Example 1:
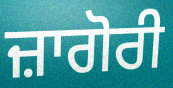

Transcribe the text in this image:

ਜ਼ਾਗੋਰੀ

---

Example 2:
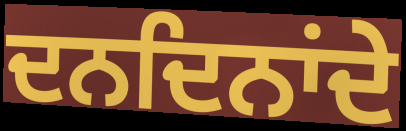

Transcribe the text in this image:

ਦਨਦਿਨਾਂਦੇ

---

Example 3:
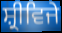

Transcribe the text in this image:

ਸ਼੍ਰੀਵਿਜੇ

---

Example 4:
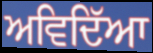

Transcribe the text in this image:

ਅਵਿਦਿੱਆ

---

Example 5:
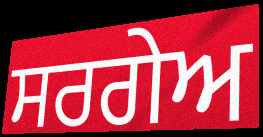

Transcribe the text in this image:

ਸਰਗੇਅ